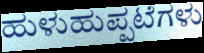
ಹುಳುಹುಪ್ಪಟೆಗಳು